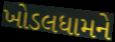
ખોડલધામને